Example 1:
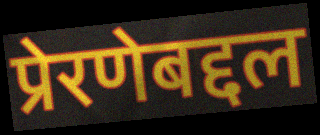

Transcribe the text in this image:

प्रेरणेबद्दल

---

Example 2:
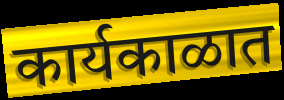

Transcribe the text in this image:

कार्यकाळात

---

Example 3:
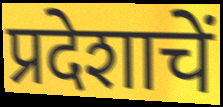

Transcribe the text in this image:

प्रदेशाचें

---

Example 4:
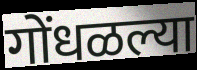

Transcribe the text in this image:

गोंधळल्या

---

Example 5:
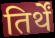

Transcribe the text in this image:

तिर्थें